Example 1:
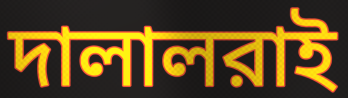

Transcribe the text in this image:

দালালরাই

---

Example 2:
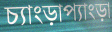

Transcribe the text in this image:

চ্যাংড়াপ্যাংড়া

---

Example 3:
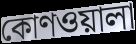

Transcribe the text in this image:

কোণওয়ালা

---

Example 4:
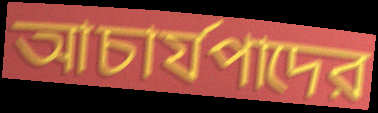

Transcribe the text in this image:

আচার্যপাদের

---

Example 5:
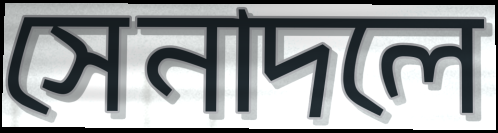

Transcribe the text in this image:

সেনাদলে